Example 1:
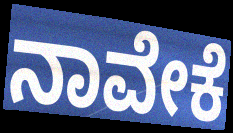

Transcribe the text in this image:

ನಾವೇಕೆ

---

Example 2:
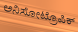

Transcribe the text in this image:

ಅನಿಸೋಟ್ರೊಪಿಕ್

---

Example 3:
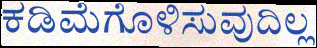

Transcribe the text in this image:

ಕಡಿಮೆಗೊಳಿಸುವುದಿಲ್ಲ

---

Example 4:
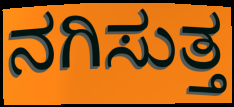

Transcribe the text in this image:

ನಗಿಸುತ್ತ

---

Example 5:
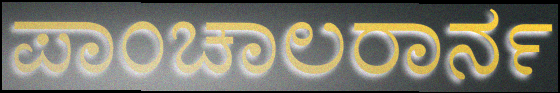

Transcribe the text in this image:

ಪಾಂಚಾಲರಾರ್ನ